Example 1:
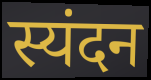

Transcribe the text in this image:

स्यंदन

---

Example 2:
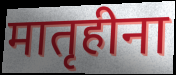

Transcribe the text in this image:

मातृहीना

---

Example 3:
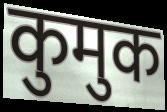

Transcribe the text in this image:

कुमुक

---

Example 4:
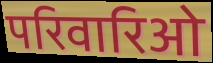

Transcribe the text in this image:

परिवारिओ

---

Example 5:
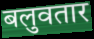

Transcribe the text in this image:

बलुवतार